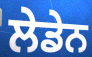
ਲੇਡੇਨ